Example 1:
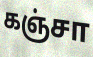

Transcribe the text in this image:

கஞ்சா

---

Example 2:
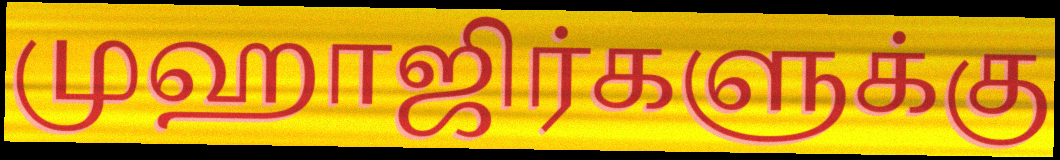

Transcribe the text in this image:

முஹாஜிர்களுக்கு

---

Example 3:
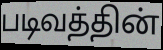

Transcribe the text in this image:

படிவத்தின்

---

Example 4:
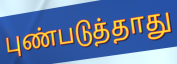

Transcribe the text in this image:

புண்படுத்தாது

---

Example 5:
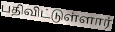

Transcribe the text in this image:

பதிவிட்டுள்ளார்